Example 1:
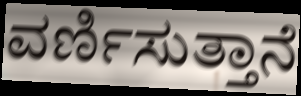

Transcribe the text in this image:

ವರ್ಣಿಸುತ್ತಾನೆ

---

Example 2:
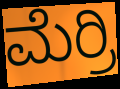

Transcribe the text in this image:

ಮೆರ್ರಿ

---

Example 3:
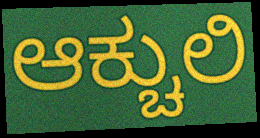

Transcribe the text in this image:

ಆಕ್ಚುಲಿ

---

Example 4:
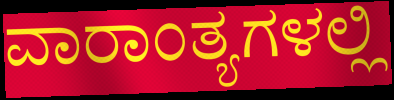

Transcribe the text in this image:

ವಾರಾಂತ್ಯಗಳಲ್ಲಿ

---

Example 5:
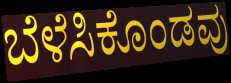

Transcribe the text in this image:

ಬೆಳೆಸಿಕೊಂಡವು